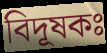
বিদূষকঃ